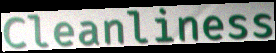
Cleanliness